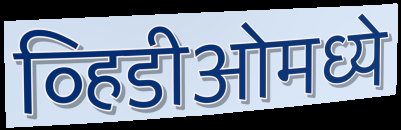
व्हिडीओमध्ये